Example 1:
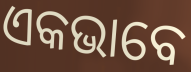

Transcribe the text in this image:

ଏକଭାବେ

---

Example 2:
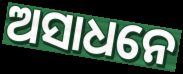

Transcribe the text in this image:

ଅସାଧନେ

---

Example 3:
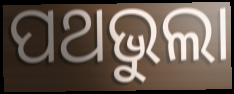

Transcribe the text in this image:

ପଥଭୁଲା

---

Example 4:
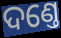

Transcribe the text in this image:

ଦଣ୍ତେ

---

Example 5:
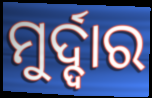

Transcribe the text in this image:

ମୁର୍ଦ୍ଦାର